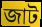
জাট